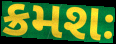
ક્રમશઃ